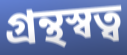
গ্রন্থস্বত্ব